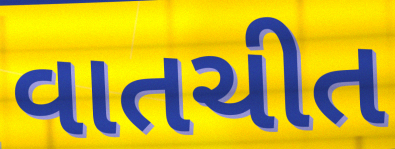
વાતચીત